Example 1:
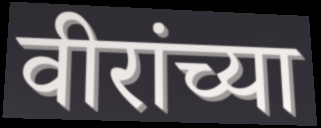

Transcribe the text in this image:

वीरांच्या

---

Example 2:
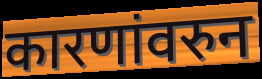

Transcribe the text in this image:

कारणांवरुन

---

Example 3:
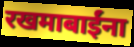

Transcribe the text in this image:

रखमाबाईंना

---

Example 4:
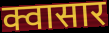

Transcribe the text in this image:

क्वासार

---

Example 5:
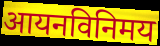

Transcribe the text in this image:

आयनविनिमय